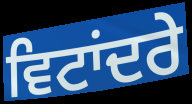
ਵਿਟਾਂਦਰੇ